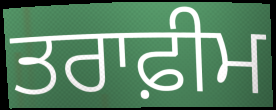
ਤਰਾਫ਼ੀਮ